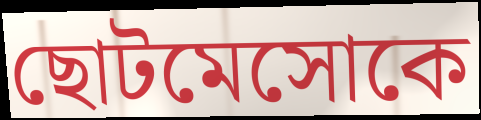
ছোটমেসোকে